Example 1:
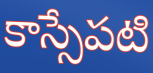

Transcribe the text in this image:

కాస్సేపటి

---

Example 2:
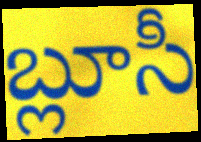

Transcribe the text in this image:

బ్లూసీ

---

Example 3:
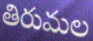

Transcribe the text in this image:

తిరుమల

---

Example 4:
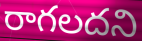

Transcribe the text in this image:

రాగలదని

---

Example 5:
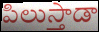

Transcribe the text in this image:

పిలుస్తాడా